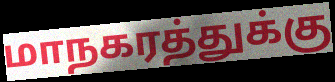
மாநகரத்துக்கு